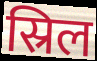
स्रिल